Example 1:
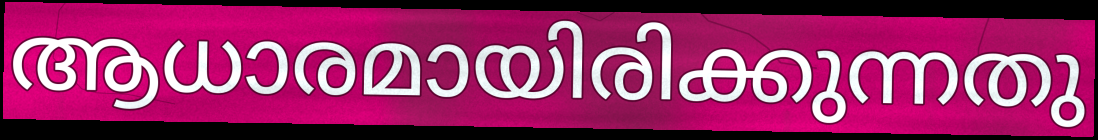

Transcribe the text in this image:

ആധാരമായിരിക്കുന്നതു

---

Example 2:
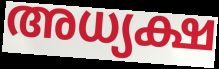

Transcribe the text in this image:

അധ്യക്ഷ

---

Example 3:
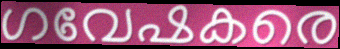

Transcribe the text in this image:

ഗവേഷകരെ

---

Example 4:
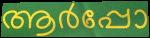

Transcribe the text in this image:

ആർപ്പോ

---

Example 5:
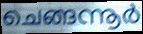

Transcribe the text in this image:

ചെങ്ങന്നൂർ